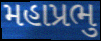
મહાપ્રભુ